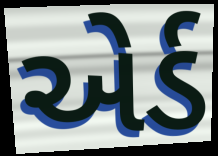
એર્ડ